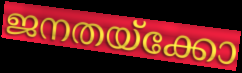
ജനതയ്ക്കോ